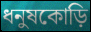
ধনুষকোড়ি